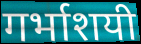
गर्भाशयी